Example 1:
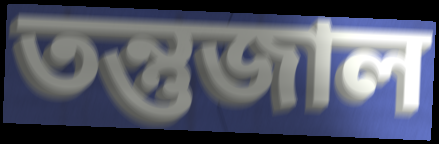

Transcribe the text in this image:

তন্তুজাল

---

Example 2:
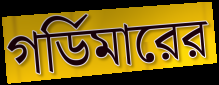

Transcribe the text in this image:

গর্ডিমারের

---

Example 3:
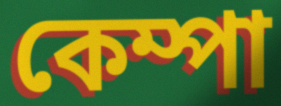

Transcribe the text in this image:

কেম্পা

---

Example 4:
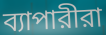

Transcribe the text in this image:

ব্যাপারীরা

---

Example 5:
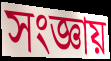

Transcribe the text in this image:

সংজ্ঞায়